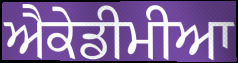
ਐਕੇਡੀਮੀਆ